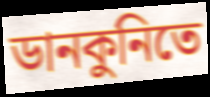
ডানকুনিতে